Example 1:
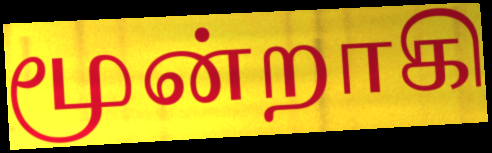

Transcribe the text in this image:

மூன்றாகி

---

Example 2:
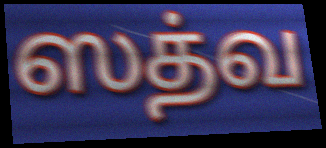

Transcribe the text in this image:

ஸத்வ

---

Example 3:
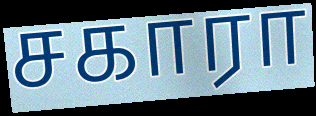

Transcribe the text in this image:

சகாரா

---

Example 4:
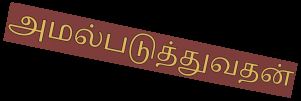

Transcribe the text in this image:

அமல்படுத்துவதன்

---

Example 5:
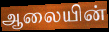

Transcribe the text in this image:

ஆலையின்